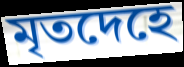
মৃতদেহে